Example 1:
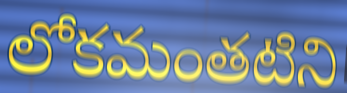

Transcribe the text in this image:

లోకమంతటిని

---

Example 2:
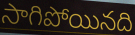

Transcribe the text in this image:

సాగిపోయినది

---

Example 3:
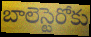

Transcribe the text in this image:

బాలెస్టెరోకు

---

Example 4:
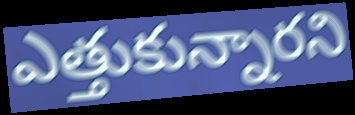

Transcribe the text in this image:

ఎత్తుకున్నారని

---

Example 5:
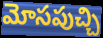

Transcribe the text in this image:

మోసపుచ్చి